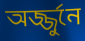
অর্জ্জুনে